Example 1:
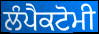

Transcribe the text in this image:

ਲੰਪੈਕਟੋਮੀ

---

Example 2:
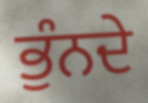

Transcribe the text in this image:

ਭੁੰਨਦੇ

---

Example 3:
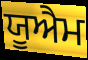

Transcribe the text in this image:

ਯੂਐਮ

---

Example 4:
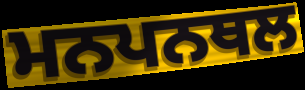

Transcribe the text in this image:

ਮਨਪਨਥਲ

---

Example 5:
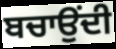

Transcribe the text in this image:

ਬਚਾਉਂਦੀ